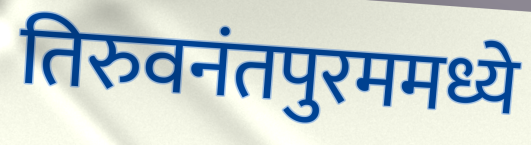
तिरुवनंतपुरममध्ये